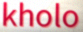
kholo